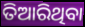
ତିଆରିଥିବା